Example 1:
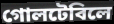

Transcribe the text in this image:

গোলটেবিলে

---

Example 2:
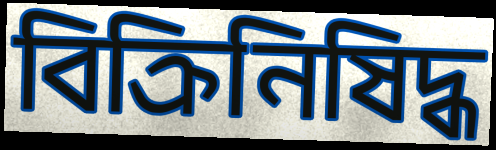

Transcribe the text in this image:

বিক্রিনিষিদ্ধ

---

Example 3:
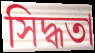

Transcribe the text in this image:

সিদ্ধতা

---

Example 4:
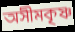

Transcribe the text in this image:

অসীমকৃষ্ণ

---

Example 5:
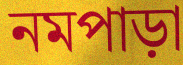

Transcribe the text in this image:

নমপাড়া